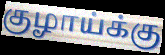
குழாய்க்கு